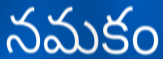
నమకం